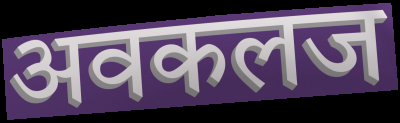
अवकलज